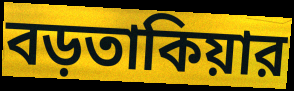
বড়তাকিয়ার